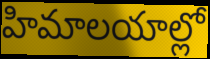
హిమాలయాల్లో